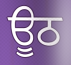
ਊਠ